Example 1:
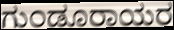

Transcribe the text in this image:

ಗುಂಡೂರಾಯರ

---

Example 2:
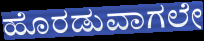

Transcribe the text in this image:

ಹೊರಡುವಾಗಲೇ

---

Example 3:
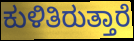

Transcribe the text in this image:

ಕುಳಿತಿರುತ್ತಾರೆ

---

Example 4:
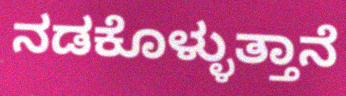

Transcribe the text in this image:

ನಡಕೊಳ್ಳುತ್ತಾನೆ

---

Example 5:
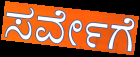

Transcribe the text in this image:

ಸರ್ವೇಗೆ